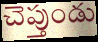
చెప్తుండు